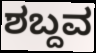
ಶಬ್ದವ